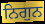
ਨਿਗੁਨ